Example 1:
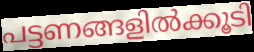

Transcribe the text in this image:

പട്ടണങ്ങളിൽക്കൂടി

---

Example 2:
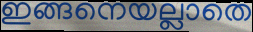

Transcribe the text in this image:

ഇങ്ങനെയല്ലാതെ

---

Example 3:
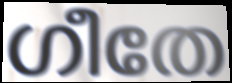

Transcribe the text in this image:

ഗീതേ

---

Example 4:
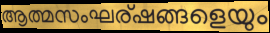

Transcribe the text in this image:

ആത്മസംഘര്ഷങ്ങളെയും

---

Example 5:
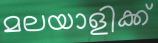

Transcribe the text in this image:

മലയാളിക്ക്